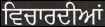
ਵਿਚਾਰਦੀਆਂ